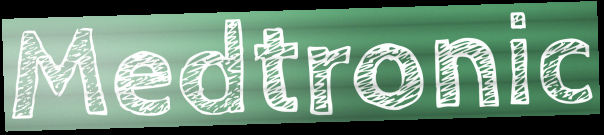
Medtronic